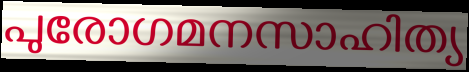
പുരോഗമനസാഹിത്യ